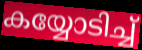
കയ്യോടിച്ച്